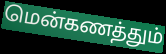
மென்கணத்தும்